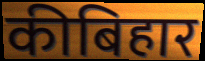
कीबिहार